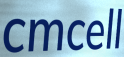
cmcell